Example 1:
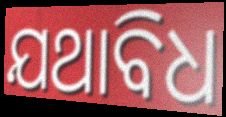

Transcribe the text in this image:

ଯଥାବିଧ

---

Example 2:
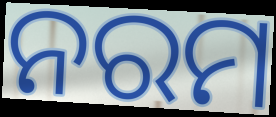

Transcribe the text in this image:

ନରମ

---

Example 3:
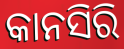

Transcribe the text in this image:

କାନସିରି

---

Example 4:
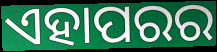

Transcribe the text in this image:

ଏହାପରର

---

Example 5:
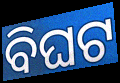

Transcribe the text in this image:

ବିଘଟ